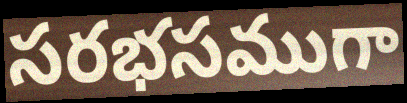
సరభసముగా